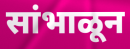
सांभाळून